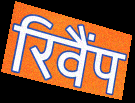
रिवैंप